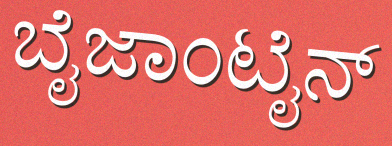
ಬೈಜಾಂಟೈನ್